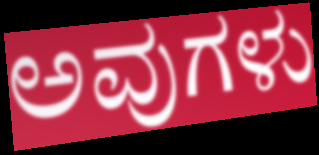
ಅವುಗಳು